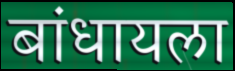
बांधायला